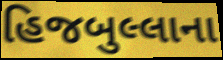
હિજબુલ્લાના